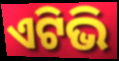
ଏଟିଭି